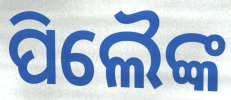
ପିଲୈଙ୍କ